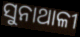
ସୁନାଥାଳୀ